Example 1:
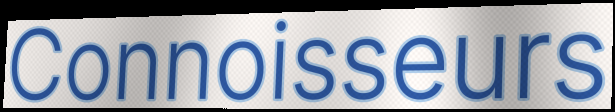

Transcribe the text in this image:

Connoisseurs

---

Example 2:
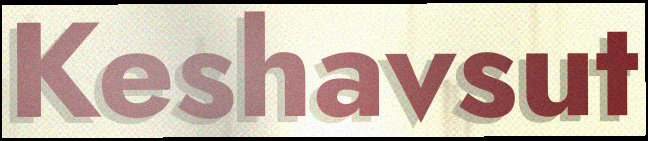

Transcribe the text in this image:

Keshavsut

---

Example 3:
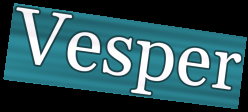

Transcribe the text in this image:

Vesper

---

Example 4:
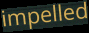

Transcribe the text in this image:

impelled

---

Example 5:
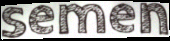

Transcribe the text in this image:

semen